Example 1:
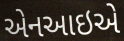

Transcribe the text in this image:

એનઆઇએ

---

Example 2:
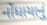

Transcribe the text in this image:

નોંધાયાનું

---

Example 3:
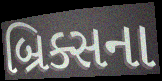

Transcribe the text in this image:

બ્રિક્સના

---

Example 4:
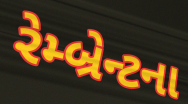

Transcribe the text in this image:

રેમ્બ્રેન્ટના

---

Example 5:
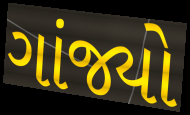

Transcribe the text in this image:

ગાંજ્યો